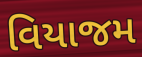
વિયાજમ